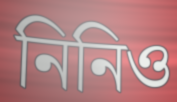
নিনিও